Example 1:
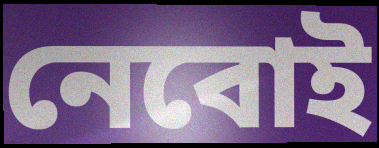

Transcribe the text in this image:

নেবোই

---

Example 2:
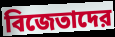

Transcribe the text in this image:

বিজেতাদের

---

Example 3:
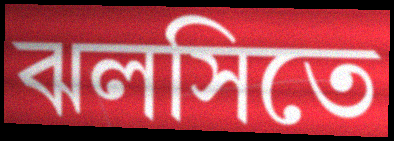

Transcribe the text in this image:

ঝলসিতে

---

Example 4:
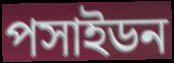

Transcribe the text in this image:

পসাইডন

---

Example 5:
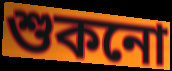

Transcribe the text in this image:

শুকনো